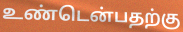
உண்டென்பதற்கு